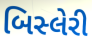
બિસ્લેરી